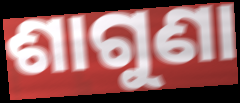
ଶାଗୁଣା